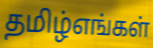
தமிழ்எங்கள்